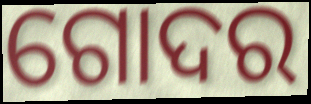
ଗୋଦର